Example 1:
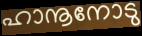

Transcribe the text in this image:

ഹാനൂനോടു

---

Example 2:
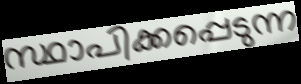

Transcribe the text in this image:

സ്ഥാപിക്കപ്പെടുന്ന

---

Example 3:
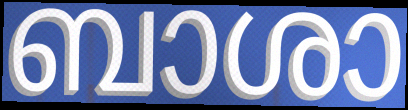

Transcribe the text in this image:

ബാശാ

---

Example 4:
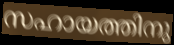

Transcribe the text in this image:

സഹായത്തിനു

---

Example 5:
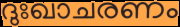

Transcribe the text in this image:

ദുഃഖാചരണം